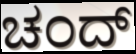
ಚಂದ್